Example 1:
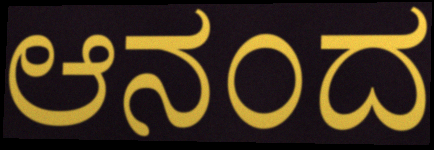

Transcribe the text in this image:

ಆನಂದ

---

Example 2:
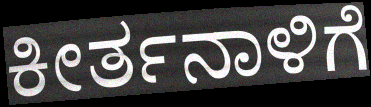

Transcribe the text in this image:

ಕೀರ್ತನಾಳಿಗೆ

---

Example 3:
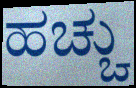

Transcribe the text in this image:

ಹಚ್ಚು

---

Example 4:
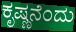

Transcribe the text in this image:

ಕೃಷ್ಣನೆಂದು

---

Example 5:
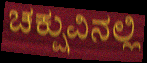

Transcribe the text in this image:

ಚಕ್ಷುವಿನಲ್ಲಿ